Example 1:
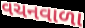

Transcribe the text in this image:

વચનવાળા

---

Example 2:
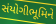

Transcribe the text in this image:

સંયોગીભૂમિને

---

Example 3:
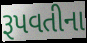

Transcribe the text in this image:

રૂપવતીના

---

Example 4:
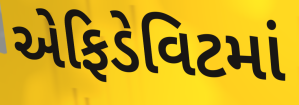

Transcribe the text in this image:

એફિડેવિટમાં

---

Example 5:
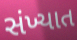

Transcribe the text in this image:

સંખ્યાત